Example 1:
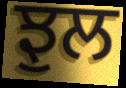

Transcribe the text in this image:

ਝੁਲ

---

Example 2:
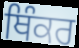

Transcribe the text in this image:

ਥਿੰਕਰ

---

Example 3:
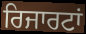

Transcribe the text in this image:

ਰਿਜਾਰਟਾਂ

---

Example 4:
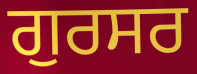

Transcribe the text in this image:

ਗੁਰਸਰ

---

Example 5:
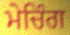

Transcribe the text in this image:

ਮੇਚਿੰਗ